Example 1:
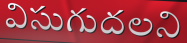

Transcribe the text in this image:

విసుగుదలని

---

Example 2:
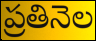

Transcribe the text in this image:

ప్రతినెల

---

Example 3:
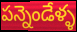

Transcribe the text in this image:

పన్నెండేళ్ళ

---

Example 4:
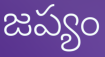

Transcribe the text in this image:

జప్యం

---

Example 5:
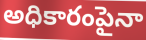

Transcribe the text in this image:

అధికారంపైనా